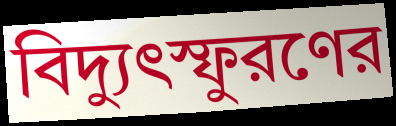
বিদ্যুৎস্ফুরণের